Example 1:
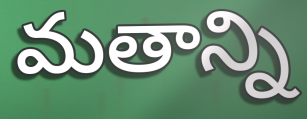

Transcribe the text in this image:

మతాన్ని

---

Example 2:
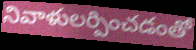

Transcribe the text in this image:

నివాళులర్పించడంతో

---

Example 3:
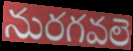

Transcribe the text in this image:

నురగవలె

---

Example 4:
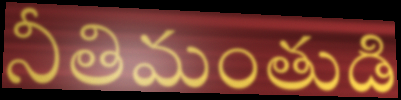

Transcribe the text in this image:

నీతిమంతుడి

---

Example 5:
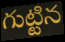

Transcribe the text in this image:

గుట్టిన